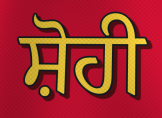
ਸ਼ੋਹੀ